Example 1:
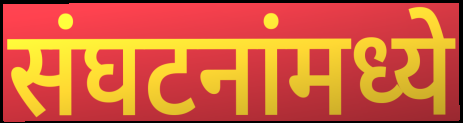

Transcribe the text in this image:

संघटनांमध्ये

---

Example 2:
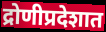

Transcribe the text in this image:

द्रोणीप्रदेशात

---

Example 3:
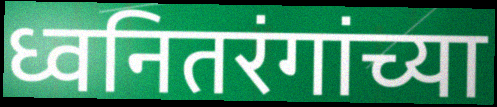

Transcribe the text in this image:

ध्वनितरंगांच्या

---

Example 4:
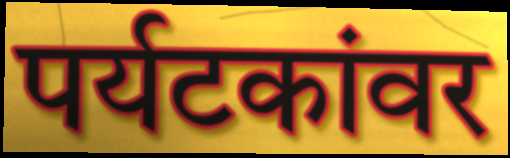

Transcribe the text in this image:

पर्यटकांवर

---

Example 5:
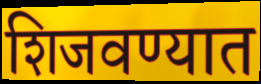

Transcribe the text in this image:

शिजवण्यात